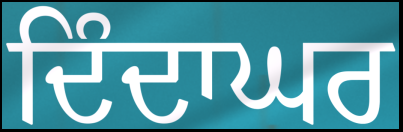
ਦਿੰਦਾਘਰ